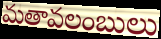
మతావలంబులు